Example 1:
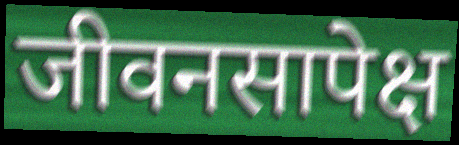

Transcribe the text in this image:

जीवनसापेक्ष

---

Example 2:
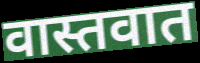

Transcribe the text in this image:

वास्तवात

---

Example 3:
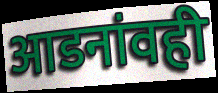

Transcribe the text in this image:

आडनांवही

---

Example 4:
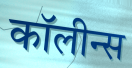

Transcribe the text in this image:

कॉलीन्स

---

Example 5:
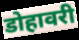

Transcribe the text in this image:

डोहावरी